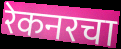
रेकनरचा